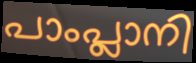
പാംപ്ലാനി